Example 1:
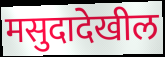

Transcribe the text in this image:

मसुदादेखील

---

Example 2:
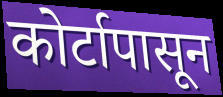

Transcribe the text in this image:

कोर्टापासून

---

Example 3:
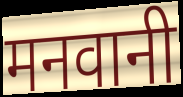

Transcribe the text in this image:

मनवानी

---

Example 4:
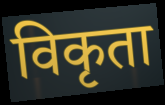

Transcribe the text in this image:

विकृता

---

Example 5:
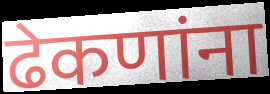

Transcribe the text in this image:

ढेकणांना